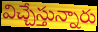
విచ్చేస్తున్నారు